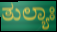
ತುಲ್ಯಾಃ